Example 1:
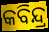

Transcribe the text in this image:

କବିନ୍ଦ୍ର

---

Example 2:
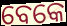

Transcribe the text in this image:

ବେକେ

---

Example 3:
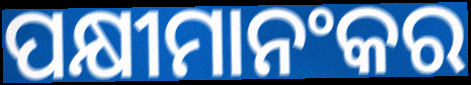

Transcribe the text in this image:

ପକ୍ଷୀମାନଂକର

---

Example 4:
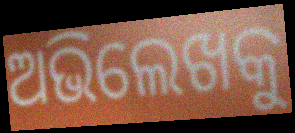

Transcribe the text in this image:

ଅଭିଲେଖକୁ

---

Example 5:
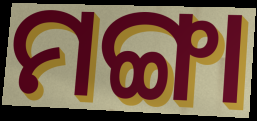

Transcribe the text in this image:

ମଙ୍ଗା